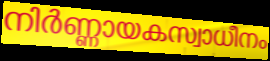
നിർണ്ണായകസ്വാധീനം